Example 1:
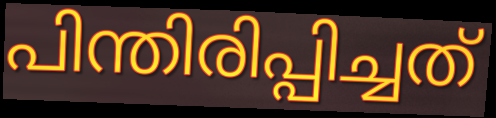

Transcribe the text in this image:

പിന്തിരിപ്പിച്ചത്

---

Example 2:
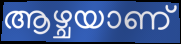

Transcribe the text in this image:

ആഴ്ചയാണ്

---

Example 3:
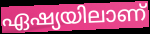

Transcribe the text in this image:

ഏഷ്യയിലാണ്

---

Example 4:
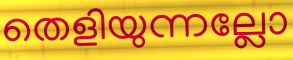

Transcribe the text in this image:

തെളിയുന്നല്ലോ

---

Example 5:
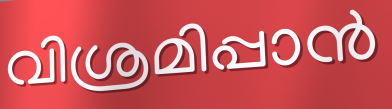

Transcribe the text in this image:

വിശ്രമിപ്പാൻ